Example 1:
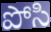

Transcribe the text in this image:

పోసి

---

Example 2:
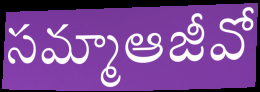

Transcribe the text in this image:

సమ్మాఆజీవో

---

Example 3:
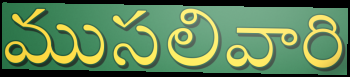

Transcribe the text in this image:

ముసలివారి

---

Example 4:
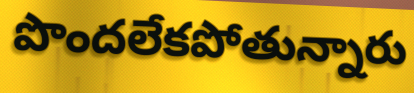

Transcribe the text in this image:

పొందలేకపోతున్నారు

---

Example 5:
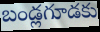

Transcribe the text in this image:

బండ్లగూడకు